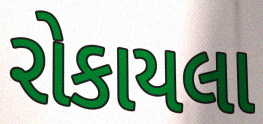
રોકાયલા